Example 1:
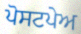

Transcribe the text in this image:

ਪੋਸਟਪੇਅ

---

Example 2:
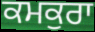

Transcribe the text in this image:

ਕਮਕੁਰਾ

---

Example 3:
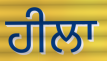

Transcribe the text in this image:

ਹੀਲਾ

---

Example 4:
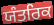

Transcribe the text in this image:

ਯੰਤਰਿਕ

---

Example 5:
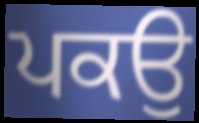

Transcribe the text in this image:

ਪਕਉ